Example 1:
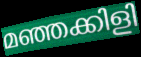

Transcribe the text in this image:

മഞ്ഞക്കിളി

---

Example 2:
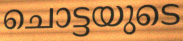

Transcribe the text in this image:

ചൊട്ടയുടെ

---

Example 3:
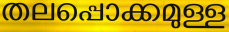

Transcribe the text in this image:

തലപ്പൊക്കമുള്ള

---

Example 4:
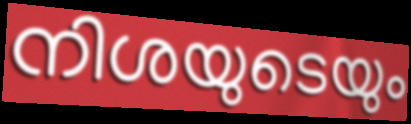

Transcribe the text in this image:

നിശയുടെയും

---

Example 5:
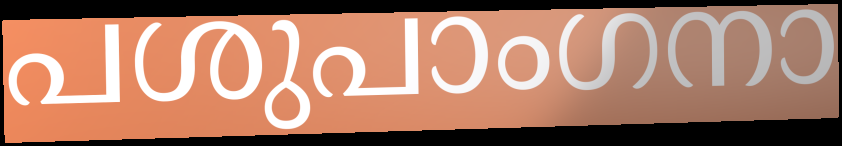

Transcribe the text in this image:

പശുപാംഗനാ